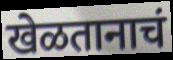
खेळतानाचं